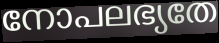
നോപലഭ്യതേ